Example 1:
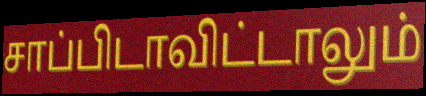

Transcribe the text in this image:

சாப்பிடாவிட்டாலும்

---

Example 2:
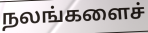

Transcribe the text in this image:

நலங்களைச்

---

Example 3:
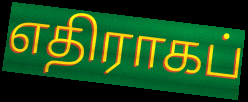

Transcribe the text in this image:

எதிராகப்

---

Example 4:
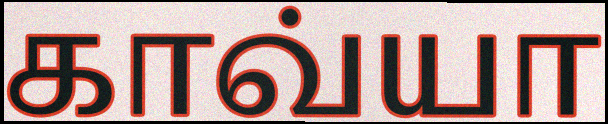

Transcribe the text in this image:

காவ்யா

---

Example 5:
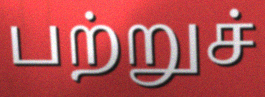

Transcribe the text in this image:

பற்றுச்